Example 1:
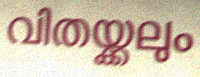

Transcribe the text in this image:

വിതയ്ക്കലും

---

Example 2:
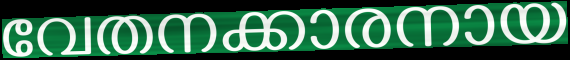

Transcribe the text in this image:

വേതനക്കാരനായ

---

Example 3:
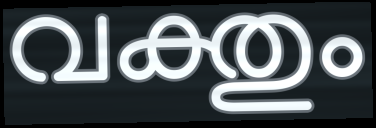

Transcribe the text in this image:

വക്തും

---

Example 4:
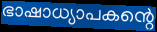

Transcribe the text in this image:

ഭാഷാധ്യാപകന്റെ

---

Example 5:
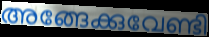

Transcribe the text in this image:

അങ്ങേക്കുവേണ്ടി